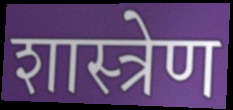
शास्त्रेण